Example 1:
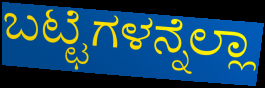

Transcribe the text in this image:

ಬಟ್ಟೆಗಳನ್ನೆಲ್ಲಾ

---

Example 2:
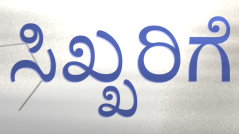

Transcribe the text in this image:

ಸಿಖ್ಖರಿಗೆ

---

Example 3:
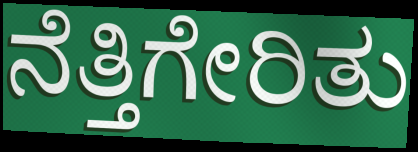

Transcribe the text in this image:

ನೆತ್ತಿಗೇರಿತು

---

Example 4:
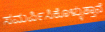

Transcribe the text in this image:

ಸಮರ್ಪಿಸಿಕೊಳ್ಳುತ್ತಾನೆ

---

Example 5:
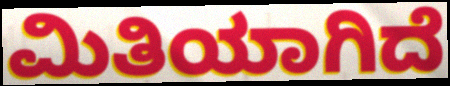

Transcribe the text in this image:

ಮಿತಿಯಾಗಿದೆ